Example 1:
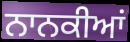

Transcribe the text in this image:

ਨਾਨਕੀਆਂ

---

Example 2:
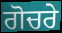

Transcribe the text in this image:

ਗੋਚਰੇ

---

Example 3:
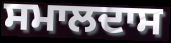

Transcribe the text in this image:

ਸਮਾਲਦਾਸ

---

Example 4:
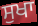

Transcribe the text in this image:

ਸੁਖਾ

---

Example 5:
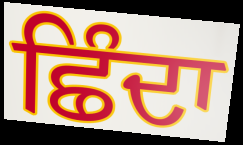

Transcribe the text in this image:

ਛਿੰਦਾ